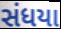
સંધયા